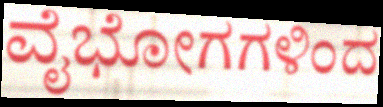
ವೈಭೋಗಗಳಿಂದ